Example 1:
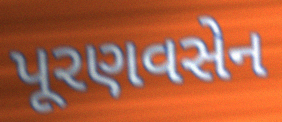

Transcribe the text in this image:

પૂરણવસેન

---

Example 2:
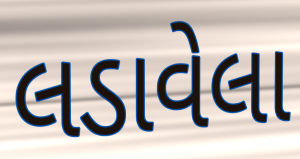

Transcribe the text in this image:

લડાવેલા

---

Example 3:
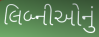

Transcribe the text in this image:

લિબ્નીઓનું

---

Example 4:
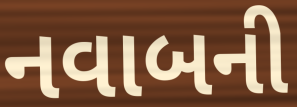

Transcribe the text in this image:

નવાબની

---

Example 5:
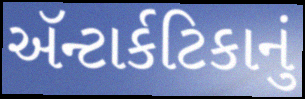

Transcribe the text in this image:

ઍન્ટાર્કટિકાનું